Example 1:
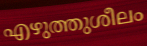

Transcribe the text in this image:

എഴുത്തുശീലം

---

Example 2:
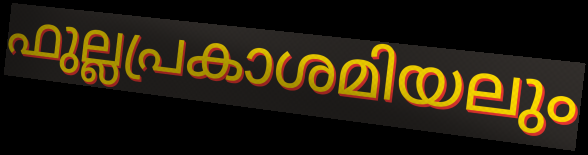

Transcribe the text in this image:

ഫുല്ലപ്രകാശമിയലും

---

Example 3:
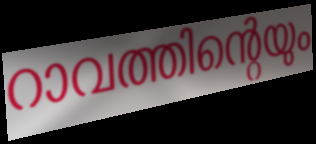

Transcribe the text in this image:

റാവത്തിന്റെയും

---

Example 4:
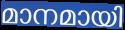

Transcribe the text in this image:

മാനമായി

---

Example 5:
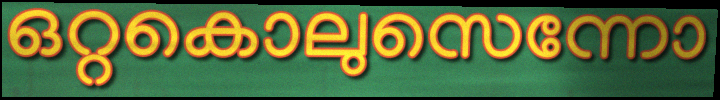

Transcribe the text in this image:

ഒറ്റകൊലുസെന്നോ